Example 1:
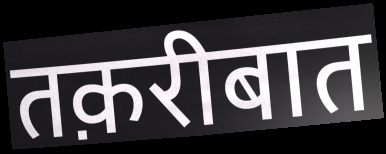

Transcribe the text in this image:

तक़रीबात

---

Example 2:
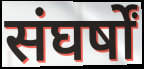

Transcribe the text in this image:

संघर्षों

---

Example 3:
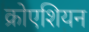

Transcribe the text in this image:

क्रोएशियन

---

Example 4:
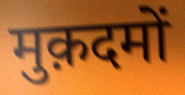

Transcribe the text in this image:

मुक़दमों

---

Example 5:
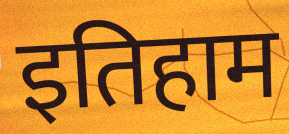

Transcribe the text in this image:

इतिहाम